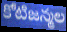
కోటిజన్మల